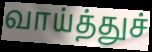
வாய்த்துச்